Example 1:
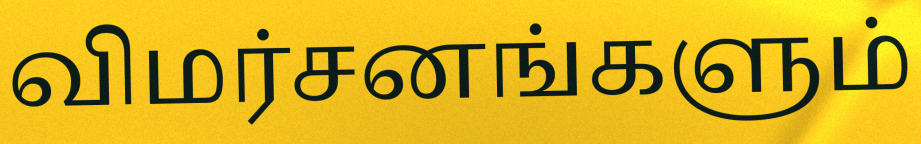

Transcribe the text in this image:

விமர்சனங்களும்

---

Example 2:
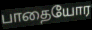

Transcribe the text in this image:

பாதையோர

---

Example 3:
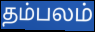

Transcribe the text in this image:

தம்பலம்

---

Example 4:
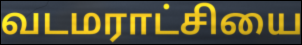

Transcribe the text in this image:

வடமராட்சியை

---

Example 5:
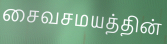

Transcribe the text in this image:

சைவசமயத்தின்